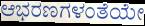
ಆಭರಣಗಳಂತೆಯೇ